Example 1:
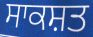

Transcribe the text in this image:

ਸਾਕਸ਼ਤ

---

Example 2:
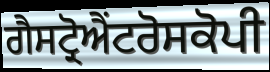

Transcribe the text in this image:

ਗੈਸਟ੍ਰੋਐਂਟਰੋਸਕੋਪੀ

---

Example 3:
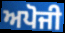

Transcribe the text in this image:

ਅਪੋਜੀ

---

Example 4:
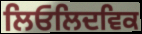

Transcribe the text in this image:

ਲਿਓਲਿਦਵਿਕ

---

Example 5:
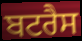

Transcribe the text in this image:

ਬਟਰੈਸ